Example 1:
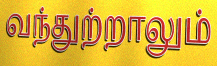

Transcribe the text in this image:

வந்துற்றாலும்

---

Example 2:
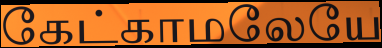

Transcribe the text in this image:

கேட்காமலேயே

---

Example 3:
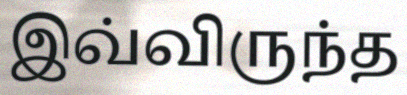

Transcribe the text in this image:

இவ்விருந்த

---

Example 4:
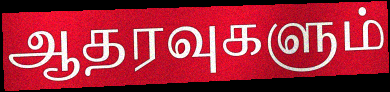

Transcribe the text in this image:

ஆதரவுகளும்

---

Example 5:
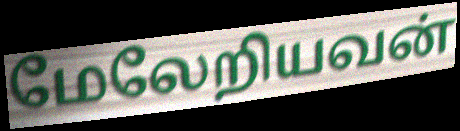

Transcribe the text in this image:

மேலேறியவன்